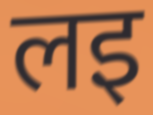
लइ